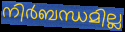
നിർബന്ധമില്ല